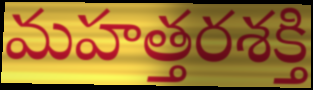
మహత్తరశక్తి